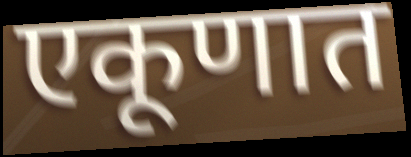
एकूणात